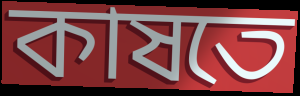
কাষতে